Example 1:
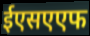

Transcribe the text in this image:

ईएसएएफ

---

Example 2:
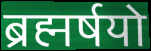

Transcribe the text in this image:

ब्रह्मर्षयो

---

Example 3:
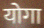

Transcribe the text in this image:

योगा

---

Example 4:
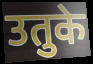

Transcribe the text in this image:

उतुके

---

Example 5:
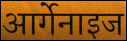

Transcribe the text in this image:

आर्गेनाइज